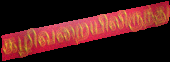
கழிவறையிலிருந்து